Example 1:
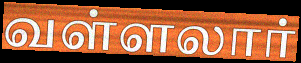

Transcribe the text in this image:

வள்ளலார்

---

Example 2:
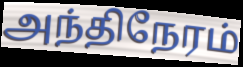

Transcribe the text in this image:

அந்திநேரம்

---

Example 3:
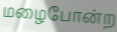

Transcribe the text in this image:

மழைபோன்ற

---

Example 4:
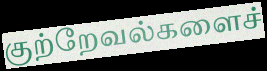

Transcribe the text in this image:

குற்றேவல்களைச்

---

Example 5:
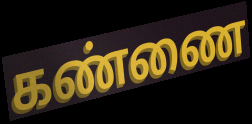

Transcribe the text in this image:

கண்ணை